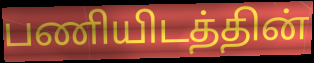
பணியிடத்தின்